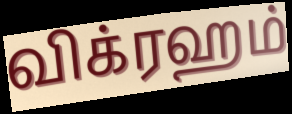
விக்ரஹம்